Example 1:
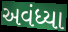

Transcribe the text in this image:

અવંધ્યા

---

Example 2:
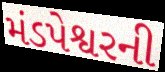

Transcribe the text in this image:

મંડપેશ્વરની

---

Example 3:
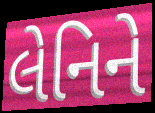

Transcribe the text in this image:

લેનિને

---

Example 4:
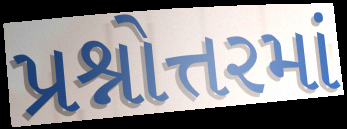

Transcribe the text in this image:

પ્રશ્નોત્તરમાં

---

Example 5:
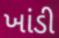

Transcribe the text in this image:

ખાંડી